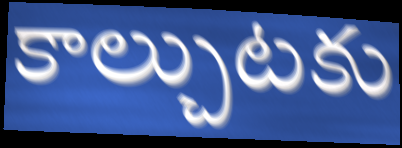
కాల్చుటకు